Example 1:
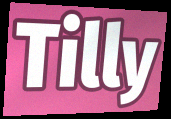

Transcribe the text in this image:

Tilly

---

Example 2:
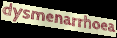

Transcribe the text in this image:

dysmenarrhoea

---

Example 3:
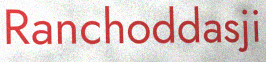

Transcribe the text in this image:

Ranchoddasji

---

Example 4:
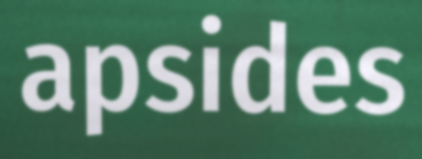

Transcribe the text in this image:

apsides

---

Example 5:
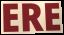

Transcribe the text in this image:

ERE